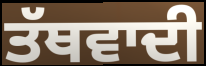
ਤੱਥਵਾਦੀ